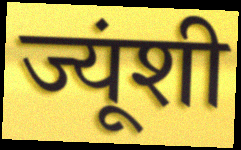
ज्यूंशी